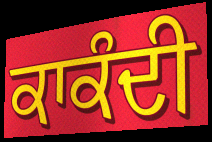
ਕਾਕੰਦੀ